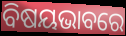
ବିଷୟଭାବରେ